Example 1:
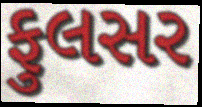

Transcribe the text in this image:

ફુલસર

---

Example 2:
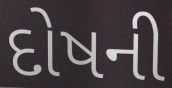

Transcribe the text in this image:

દોષની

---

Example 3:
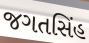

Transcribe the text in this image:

જગતસિંહ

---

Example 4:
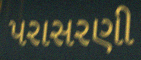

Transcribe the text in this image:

પરાસરણી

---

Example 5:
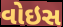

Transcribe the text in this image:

વોઇસ